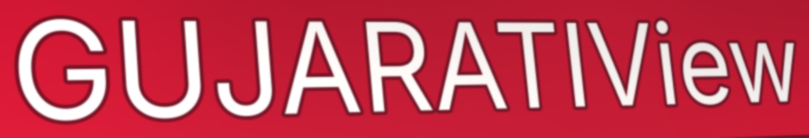
GUJARATIView